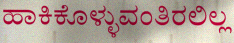
ಹಾಕಿಕೊಳ್ಳುವಂತಿರಲಿಲ್ಲ